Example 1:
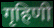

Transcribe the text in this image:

गृहिणी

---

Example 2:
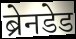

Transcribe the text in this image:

ब्रेनडेड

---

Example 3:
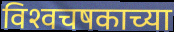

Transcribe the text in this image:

विश्वचषकाच्या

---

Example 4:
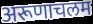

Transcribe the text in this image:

अरूणाचलम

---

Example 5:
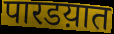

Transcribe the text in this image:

पारडय़ात